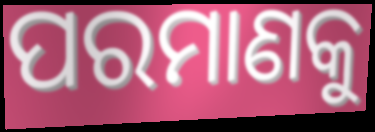
ପରମାଣକୁ